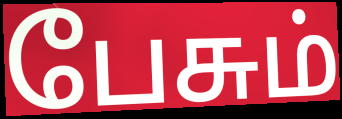
பேசும்